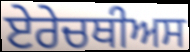
ਏਰੇਚਥੀਅਸ